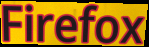
Firefox